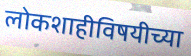
लोकशाहीविषयीच्या